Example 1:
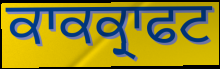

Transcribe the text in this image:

ਕਾਕਕ੍ਰਾਫਟ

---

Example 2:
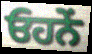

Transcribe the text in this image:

ਓਹਨੇੰ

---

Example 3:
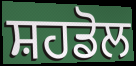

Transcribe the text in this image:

ਸ਼ਹਡੋਲ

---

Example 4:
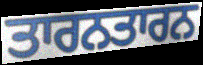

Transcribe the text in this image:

ਤਾਰਨਤਾਰਨ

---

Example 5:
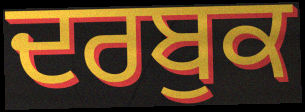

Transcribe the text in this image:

ਦਰਬੁਕ